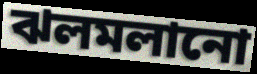
ঝলমলানো